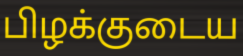
பிழக்குடைய